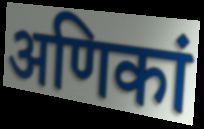
अणिकां